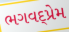
ભગવદ્પ્રેમ